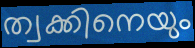
ത്വക്കിനെയും